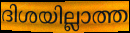
ദിശയില്ലാത്ത